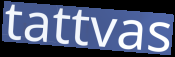
tattvas